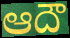
ఆదౌ